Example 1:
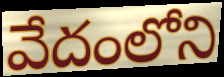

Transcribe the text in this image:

వేదంలోని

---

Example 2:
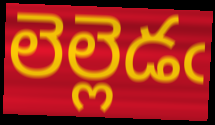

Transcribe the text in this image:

లెల్లెడఁ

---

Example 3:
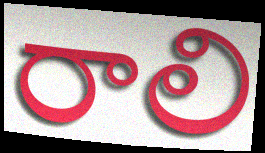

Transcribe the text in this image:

రాలి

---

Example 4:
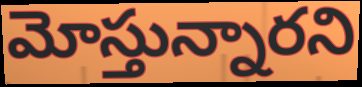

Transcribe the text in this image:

మోస్తున్నారని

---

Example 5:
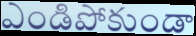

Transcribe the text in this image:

ఎండిపోకుండా